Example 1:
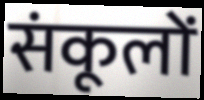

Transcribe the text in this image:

संकूलों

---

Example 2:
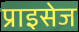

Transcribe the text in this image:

प्राइसेज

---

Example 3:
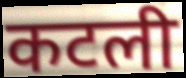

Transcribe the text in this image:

कटली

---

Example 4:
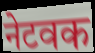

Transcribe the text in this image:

नेटवक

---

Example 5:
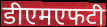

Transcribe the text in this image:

डीएमएफटी